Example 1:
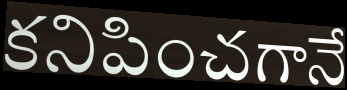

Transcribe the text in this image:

కనిపించగానే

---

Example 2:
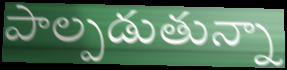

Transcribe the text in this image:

పాల్పడుతున్నా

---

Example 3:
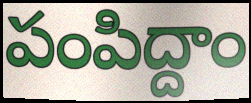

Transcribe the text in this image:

పంపిద్దాం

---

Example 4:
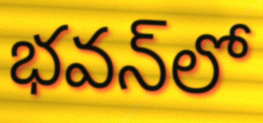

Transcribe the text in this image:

భవన్‌లో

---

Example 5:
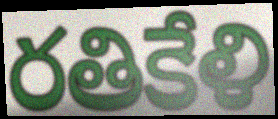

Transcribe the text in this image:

రతికేళి